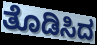
ತೊಡಿಸಿದ